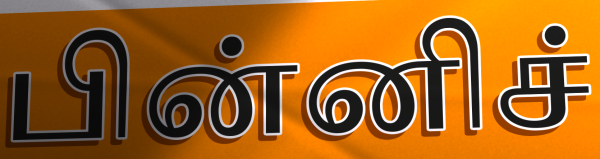
பின்னிச்